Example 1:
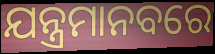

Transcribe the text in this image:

ଯନ୍ତ୍ରମାନବରେ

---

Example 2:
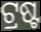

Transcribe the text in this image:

ଟ୍ରଷ୍ଟ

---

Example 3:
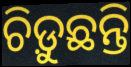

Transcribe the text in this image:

ଚିଡ଼ୁଛନ୍ତି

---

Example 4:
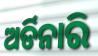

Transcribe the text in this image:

ଅର୍ଡିନାରି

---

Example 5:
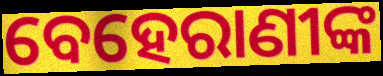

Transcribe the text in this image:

ବେହେରାଣୀଙ୍କ